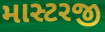
માસ્ટરજી